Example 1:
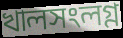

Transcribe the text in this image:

খালসংলগ্ন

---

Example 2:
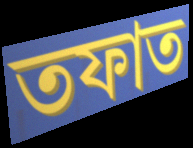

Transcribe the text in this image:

তফাত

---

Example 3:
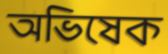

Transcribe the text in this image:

অভিষেক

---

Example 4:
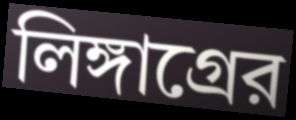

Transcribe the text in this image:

লিঙ্গাগ্রের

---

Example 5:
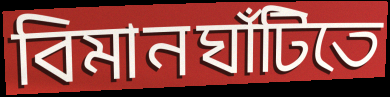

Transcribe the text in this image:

বিমানঘাঁটিতে